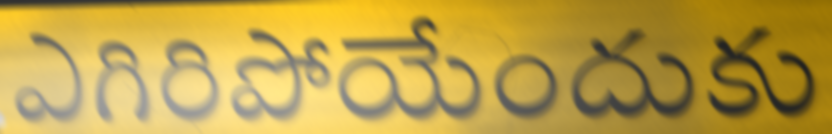
ఎగిరిపోయేందుకు